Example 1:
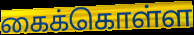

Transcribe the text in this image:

கைக்கொள்ள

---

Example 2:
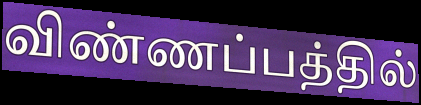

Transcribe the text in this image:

விண்ணப்பத்தில்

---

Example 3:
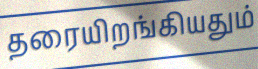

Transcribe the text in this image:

தரையிறங்கியதும்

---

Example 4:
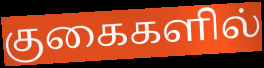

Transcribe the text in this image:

குகைகளில்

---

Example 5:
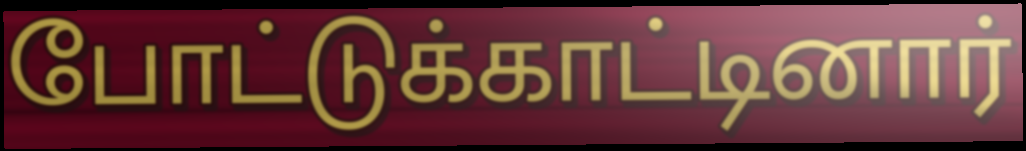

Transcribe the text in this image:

போட்டுக்காட்டினார்